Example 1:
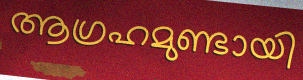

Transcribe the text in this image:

ആഗ്രഹമുണ്ടായി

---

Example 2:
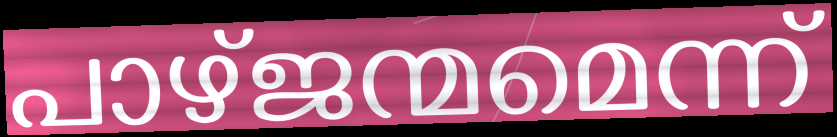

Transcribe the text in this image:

പാഴ്ജന്മമെന്ന്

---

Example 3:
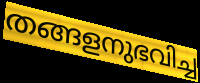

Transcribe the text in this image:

തങ്ങളനുഭവിച്ച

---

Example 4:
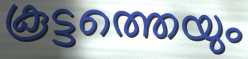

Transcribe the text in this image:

കൂട്ടത്തെയും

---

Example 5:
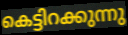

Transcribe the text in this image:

കെട്ടിറക്കുന്നു